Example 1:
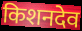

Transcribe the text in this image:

किशनदेव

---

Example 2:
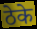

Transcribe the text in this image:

ठेके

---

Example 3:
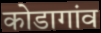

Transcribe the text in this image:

कोडागांव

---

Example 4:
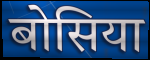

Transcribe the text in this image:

बोसिया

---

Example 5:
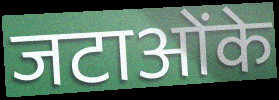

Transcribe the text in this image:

जटाओंके